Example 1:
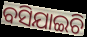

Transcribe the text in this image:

ବସିଯାଇଚି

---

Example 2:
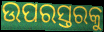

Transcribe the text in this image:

ଉପରସ୍ତରକୁ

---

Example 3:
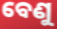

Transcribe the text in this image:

ବେଣୁ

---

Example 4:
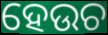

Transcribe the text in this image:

ହେଉଚ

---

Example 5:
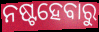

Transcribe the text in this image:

ନଷ୍ଟହେବାରୁ